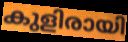
കുളിരായി